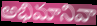
అభిమానివా